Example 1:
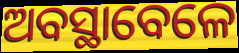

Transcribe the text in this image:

ଅବସ୍ଥାବେଳେ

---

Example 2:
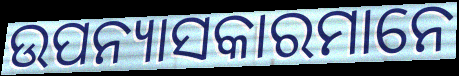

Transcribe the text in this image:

ଉପନ୍ୟାସକାରମାନେ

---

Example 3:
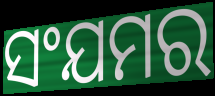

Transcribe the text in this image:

ସଂଯମର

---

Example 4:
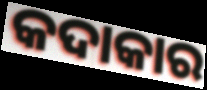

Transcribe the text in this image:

କଦାକାର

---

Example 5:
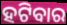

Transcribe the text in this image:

ହଟିବାର